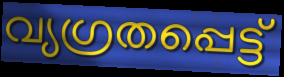
വ്യഗ്രതപ്പെട്ട്